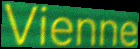
Vienne